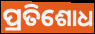
ପ୍ରତିଶୋଧ